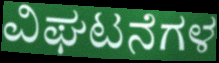
ವಿಘಟನೆಗಳ